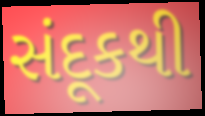
સંદૂકથી